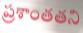
ప్రశాంతతని